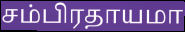
சம்பிரதாயமா